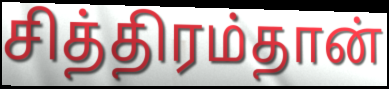
சித்திரம்தான்